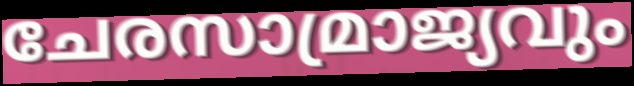
ചേരസാമ്രാജ്യവും